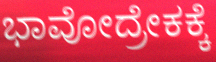
ಭಾವೋದ್ರೇಕಕ್ಕೆ